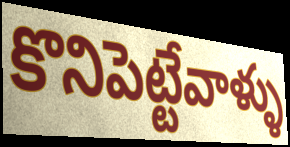
కొనిపెట్టేవాళ్ళు